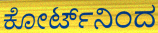
ಕೋರ್ಟ್‌ನಿಂದ